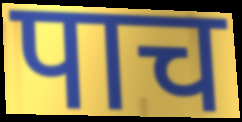
पाच